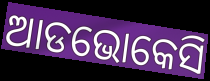
ଆଡଭୋକେସି